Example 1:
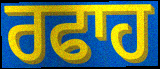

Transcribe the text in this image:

ਰਫਾਹ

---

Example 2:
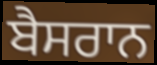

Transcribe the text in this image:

ਬੈਸਰਾਨ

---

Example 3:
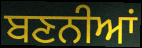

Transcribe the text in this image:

ਬਣਨੀਆਂ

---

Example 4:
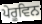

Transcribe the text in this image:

ਪੇਰੂਵਿਨ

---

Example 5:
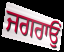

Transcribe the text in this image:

ਜਗਰਾਓੁਂ